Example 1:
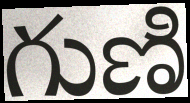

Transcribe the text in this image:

గుణి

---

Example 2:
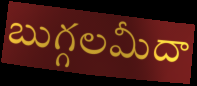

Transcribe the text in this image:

బుగ్గలమీదా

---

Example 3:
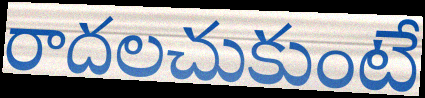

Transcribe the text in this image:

రాదలచుకుంటే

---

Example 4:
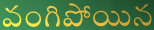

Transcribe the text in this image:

వంగిపోయిన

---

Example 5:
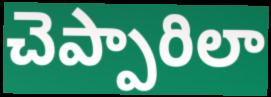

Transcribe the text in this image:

చెప్పారిలా